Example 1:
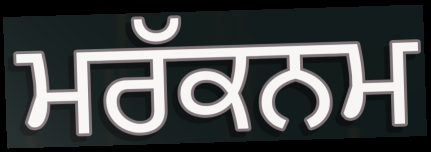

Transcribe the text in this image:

ਮਰੱਕਨਮ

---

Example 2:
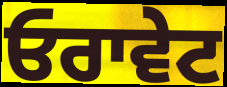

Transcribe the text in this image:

ਓਰਾਵੇਟ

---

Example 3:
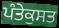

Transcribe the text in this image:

ਪੰਤੇਕੁਸਤ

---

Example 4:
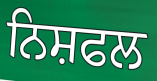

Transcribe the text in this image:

ਨਿਸ਼ਫਲ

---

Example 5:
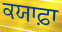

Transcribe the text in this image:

ਕਯਾਫ਼ਾ